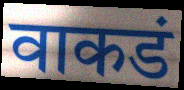
वाकडं